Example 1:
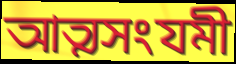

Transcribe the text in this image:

আত্মসংযমী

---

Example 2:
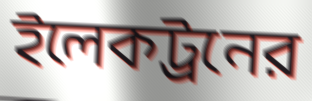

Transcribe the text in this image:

ইলেকট্রনের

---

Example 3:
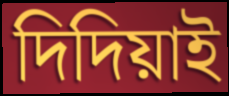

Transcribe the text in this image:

দিদিয়াই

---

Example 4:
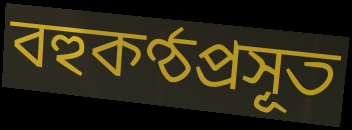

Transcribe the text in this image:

বহুকণ্ঠপ্রসূত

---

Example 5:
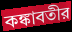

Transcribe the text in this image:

কঙ্কাবতীর